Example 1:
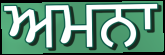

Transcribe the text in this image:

ਅਮਨਾ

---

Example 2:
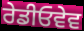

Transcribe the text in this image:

ਰੇਡੀਓਵੇਵ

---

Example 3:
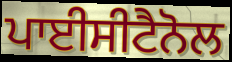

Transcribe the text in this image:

ਪਾਈਸੀਟੈਨੋਲ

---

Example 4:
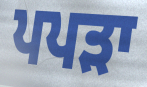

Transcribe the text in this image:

ਪਪੜਾ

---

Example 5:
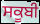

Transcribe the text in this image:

ਸਕੂਬੀ